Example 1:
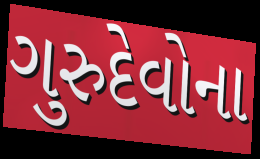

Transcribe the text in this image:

ગુરુદેવોના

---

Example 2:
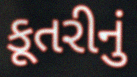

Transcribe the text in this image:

કૂતરીનું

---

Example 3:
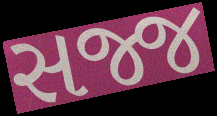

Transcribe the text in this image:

સજ્જ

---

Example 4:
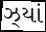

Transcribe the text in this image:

ઝ્યાં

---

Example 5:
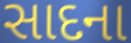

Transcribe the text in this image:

સાદના